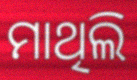
ମାଥିଲି